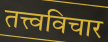
तत्त्वविचार